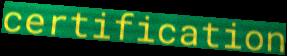
certification